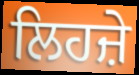
ਲਿਹਜ਼ੇ